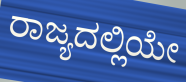
ರಾಜ್ಯದಲ್ಲಿಯೇ